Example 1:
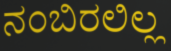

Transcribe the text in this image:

ನಂಬಿರಲಿಲ್ಲ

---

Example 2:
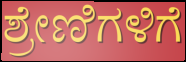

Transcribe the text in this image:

ಶ್ರೇಣಿಗಳಿಗೆ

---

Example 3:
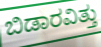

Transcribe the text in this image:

ಬಿಡಾರವಿತ್ತು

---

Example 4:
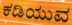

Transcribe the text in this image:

ಕಡಿಯುವ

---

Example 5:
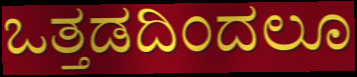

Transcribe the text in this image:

ಒತ್ತಡದಿಂದಲೂ